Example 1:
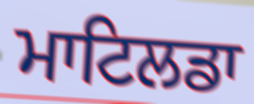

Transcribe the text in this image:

ਮਾਟਿਲਡਾ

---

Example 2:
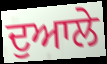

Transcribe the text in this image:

ਦੁਆਲੇ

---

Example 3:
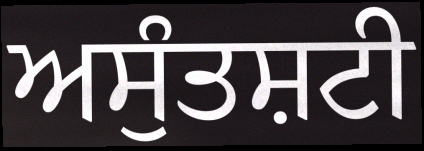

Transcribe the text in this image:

ਅਸੁੰਤਸ਼ਟੀ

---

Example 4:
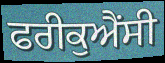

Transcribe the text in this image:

ਫਰੀਕੁਐਂਸੀ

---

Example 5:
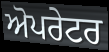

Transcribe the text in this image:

ਅੋਪਰੇਟਰ